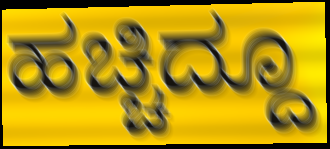
ಹಚ್ಚಿದ್ದೂ